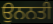
ਉਨਨਤੀ